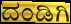
ದಂಡಿಗಿ